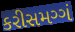
કરીસમગ્ગં